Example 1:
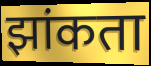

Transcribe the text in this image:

झांकता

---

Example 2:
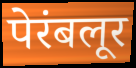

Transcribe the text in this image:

पेरंबलूर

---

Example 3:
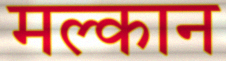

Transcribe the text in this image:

मल्कान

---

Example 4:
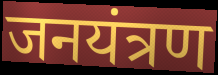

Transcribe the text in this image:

जनयंत्रण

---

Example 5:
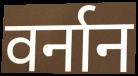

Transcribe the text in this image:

वर्नान